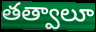
తత్వాలూ